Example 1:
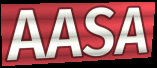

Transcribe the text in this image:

AASA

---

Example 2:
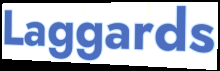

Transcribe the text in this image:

Laggards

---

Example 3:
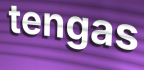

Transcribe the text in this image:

tengas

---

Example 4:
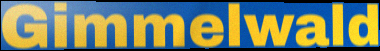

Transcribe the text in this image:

Gimmelwald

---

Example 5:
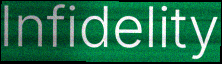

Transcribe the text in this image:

Infidelity